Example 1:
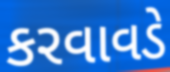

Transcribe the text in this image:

કરવાવડે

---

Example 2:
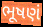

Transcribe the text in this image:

ભૂષણં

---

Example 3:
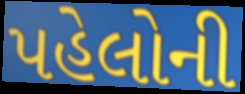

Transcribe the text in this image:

પહેલોની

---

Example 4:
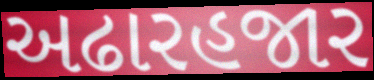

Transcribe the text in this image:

અઢારહજાર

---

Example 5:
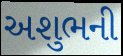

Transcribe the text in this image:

અશુભની